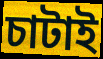
চাটাই